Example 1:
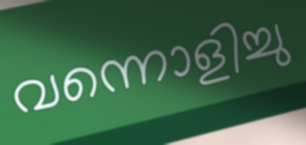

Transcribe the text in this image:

വന്നൊളിച്ചു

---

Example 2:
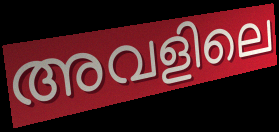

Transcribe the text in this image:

അവളിലെ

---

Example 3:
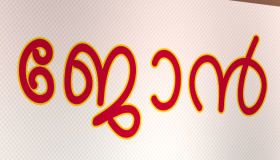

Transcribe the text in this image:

ജോൻ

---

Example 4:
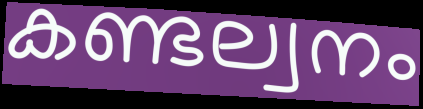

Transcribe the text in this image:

കണ്ടല്വനം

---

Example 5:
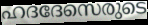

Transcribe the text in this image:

ഹദദേസെരുടെ